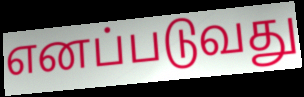
எனப்படுவது